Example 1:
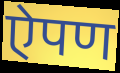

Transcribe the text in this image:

ऐपण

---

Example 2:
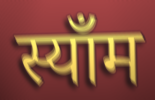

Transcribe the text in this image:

स्याँम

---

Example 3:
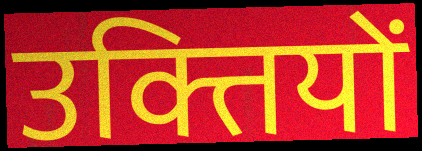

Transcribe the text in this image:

उक्तियों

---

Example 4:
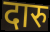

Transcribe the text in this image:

दारु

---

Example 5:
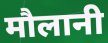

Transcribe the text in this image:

मौलानी